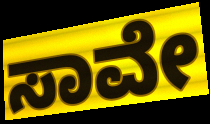
ಸಾವೇ